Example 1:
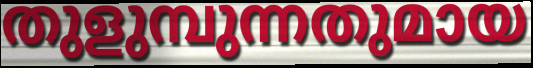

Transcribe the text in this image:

തുളുമ്പുന്നതുമായ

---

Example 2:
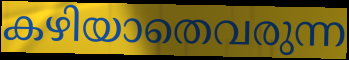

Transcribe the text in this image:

കഴിയാതെവരുന്ന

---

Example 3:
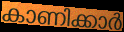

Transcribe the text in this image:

കാണിക്കാർ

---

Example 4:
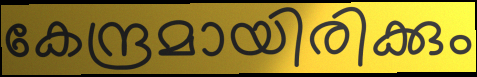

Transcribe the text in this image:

കേന്ദ്രമായിരിക്കും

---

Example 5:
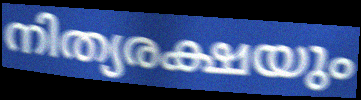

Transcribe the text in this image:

നിത്യരക്ഷയും